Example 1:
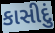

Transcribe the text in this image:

કાસીદું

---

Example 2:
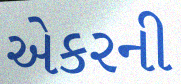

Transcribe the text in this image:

એકરની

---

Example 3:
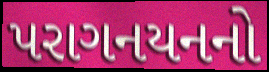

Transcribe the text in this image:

પરાગનયનનો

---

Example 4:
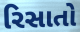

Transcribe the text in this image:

રિસાતો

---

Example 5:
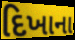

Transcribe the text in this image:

દિખાના